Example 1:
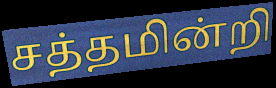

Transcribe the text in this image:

சத்தமின்றி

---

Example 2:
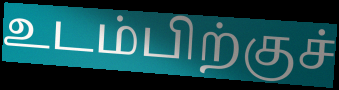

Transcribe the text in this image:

உடம்பிற்குச்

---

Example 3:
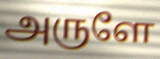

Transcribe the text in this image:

அருளே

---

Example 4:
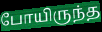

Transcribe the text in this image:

போயிருந்த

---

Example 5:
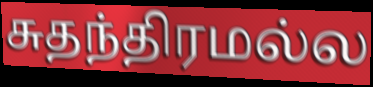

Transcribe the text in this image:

சுதந்திரமல்ல